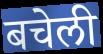
बचेली